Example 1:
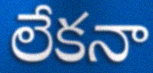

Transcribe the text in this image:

లేకనా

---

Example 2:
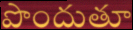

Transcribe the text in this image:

పొందుతూ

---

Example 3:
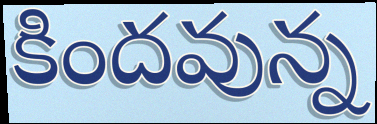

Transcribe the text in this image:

కిందవున్న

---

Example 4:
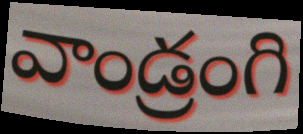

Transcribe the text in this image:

వాండ్రంగి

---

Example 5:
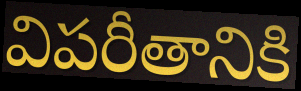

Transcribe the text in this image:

విపరీతానికి